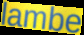
lambe